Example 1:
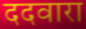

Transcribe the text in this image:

ददवारा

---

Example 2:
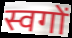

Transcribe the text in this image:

स्वगों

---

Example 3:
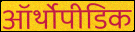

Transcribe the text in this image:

ऑर्थोपीडिक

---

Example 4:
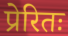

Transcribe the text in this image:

प्रेरितः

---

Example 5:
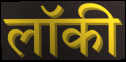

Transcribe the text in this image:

लॉकी